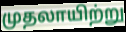
முதலாயிற்று